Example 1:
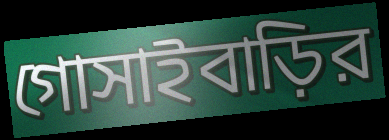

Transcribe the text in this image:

গোসাইবাড়ির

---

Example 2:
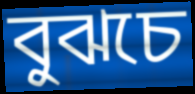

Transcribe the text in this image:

বুঝচে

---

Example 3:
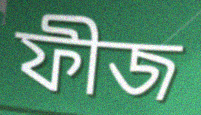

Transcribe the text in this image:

ফীজ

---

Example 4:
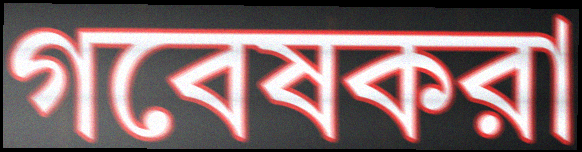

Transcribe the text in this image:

গবেষকরা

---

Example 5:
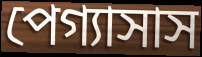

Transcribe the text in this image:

পেগ্যাসাস